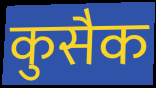
कुसैक